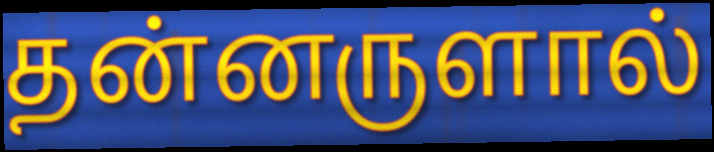
தன்னருளால்